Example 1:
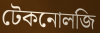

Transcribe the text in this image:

টেকনোলজি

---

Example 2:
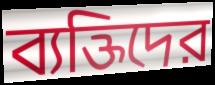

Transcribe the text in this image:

ব্যক্তিদের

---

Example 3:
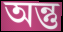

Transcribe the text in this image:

অন্তু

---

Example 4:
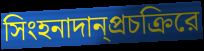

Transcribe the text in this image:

সিংহনাদান্প্রচক্রিরে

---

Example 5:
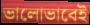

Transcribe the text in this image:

ভালোভাবেই